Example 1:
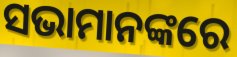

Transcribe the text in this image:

ସଭାମାନଙ୍କରେ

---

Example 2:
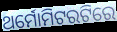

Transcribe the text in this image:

ଥର୍ମୋମିଟରଟିରେ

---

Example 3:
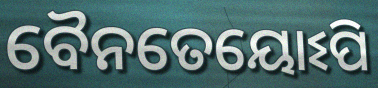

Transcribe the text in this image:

ବୈନତେୟୋଽପି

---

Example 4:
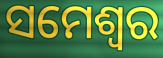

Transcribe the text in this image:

ସମେଶ୍ୱର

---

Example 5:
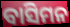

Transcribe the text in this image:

ବାସିମନ